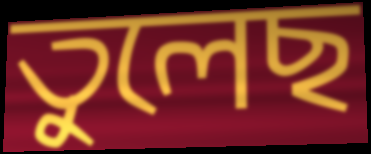
তুলেছ